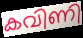
കവിണി